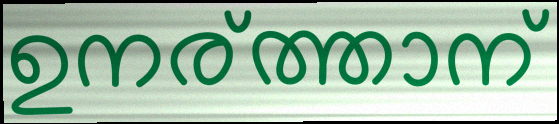
ഉനര്ത്താന്